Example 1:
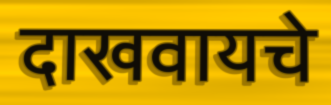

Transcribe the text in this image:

दाखवायचे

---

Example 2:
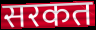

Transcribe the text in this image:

सरकत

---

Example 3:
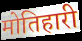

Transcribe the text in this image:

मोतिहारी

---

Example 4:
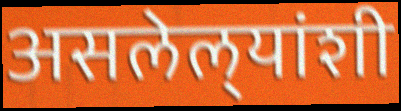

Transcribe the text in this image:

असलेल्यांशी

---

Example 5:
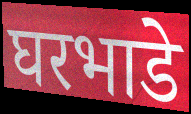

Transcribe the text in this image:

घरभाडे